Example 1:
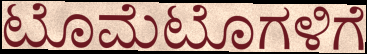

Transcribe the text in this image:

ಟೊಮೆಟೊಗಳಿಗೆ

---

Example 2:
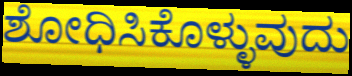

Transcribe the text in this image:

ಶೋಧಿಸಿಕೊಳ್ಳುವುದು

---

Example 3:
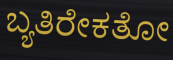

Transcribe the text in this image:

ಬ್ಯತಿರೇಕತೋ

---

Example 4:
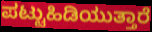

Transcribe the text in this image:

ಪಟ್ಟುಹಿಡಿಯುತ್ತಾರೆ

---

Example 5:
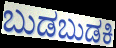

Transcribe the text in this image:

ಬುಡಬುಡಕಿ